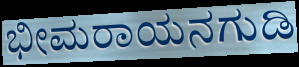
ಭೀಮರಾಯನಗುಡಿ